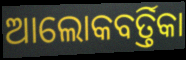
ଆଲୋକବର୍ତ୍ତିକା